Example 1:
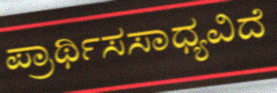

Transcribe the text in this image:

ಪ್ರಾರ್ಥಿಸಸಾಧ್ಯವಿದೆ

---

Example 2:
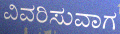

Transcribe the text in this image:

ವಿವರಿಸುವಾಗ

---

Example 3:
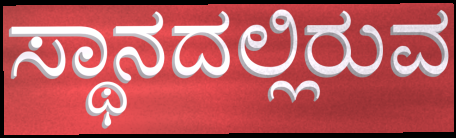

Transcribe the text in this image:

ಸ್ಥಾನದಲ್ಲಿರುವ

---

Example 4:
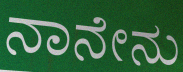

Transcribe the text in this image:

ನಾನೇನು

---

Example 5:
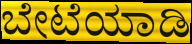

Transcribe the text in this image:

ಬೇಟೆಯಾಡಿ